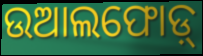
ଉଆଲଫୋଡ଼୍